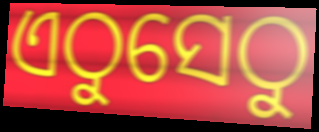
ଏଠୁସେଠୁ